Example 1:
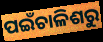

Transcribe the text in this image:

ପଇଁଚାଳିଶରୁ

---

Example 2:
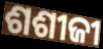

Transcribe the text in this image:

ଶଶୀଜୀ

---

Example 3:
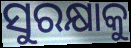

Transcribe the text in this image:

ସୁରକ୍ଷାକୁ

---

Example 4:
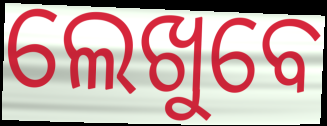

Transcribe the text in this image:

ଲେଖୁବେ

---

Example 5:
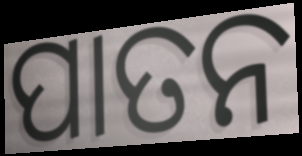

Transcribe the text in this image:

ପାତନ